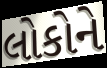
લોકોને